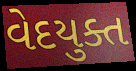
વેદયુક્ત